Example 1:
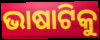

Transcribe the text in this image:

ଭାଷାଟିକୁ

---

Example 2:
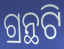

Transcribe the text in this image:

ଗ୍ରନ୍ଥଟି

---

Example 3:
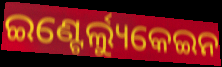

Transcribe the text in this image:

ଇଣ୍ଟେର୍ଲ୍ୟୁକେଇନ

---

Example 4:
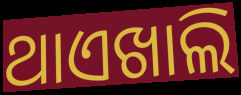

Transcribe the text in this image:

ଥାଏଖାଲି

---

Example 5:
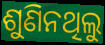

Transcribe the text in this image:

ଶୁଣିନଥିଲୁ